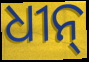
ଧୀନ୍